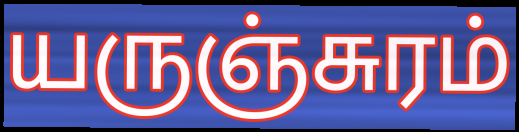
யருஞ்சுரம்